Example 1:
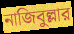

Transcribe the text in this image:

নাজিবুল্লার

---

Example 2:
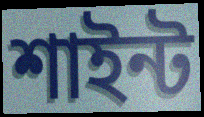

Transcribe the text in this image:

শাইন্ট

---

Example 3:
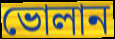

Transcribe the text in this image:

ভোলান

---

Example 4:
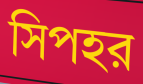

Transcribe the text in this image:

সিপহর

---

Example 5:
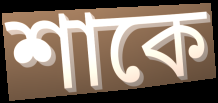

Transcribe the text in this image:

শাকে